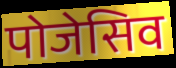
पोजेसिव